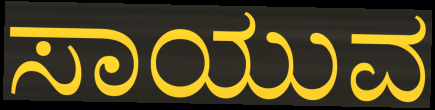
ಸಾಯುವ